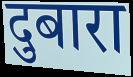
दुबारा